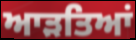
ਆੜਤਿਆਂ